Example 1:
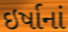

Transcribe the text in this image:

ઇર્ષાનાં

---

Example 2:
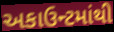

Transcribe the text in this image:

અકાઉન્ટમાંથી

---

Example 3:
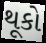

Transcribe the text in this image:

થૂકો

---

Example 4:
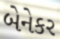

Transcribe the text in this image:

બેનેકર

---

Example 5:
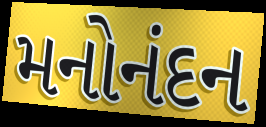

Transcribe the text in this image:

મનોનંદન